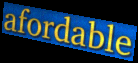
afordable